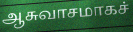
ஆசுவாசமாகச்